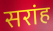
सरांह